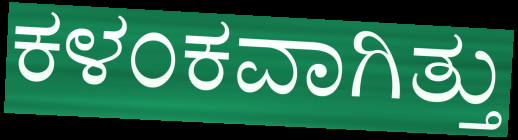
ಕಳಂಕವಾಗಿತ್ತು